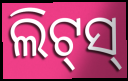
ଲିଟ୍‌ସ୍